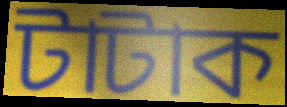
টাটাক